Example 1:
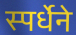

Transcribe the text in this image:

स्पर्धेने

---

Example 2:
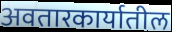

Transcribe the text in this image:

अवतारकार्यातील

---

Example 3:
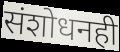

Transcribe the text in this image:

संशोधनही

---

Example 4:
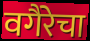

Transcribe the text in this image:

वगैरेचा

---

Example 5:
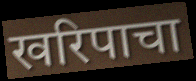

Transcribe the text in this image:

खरिपाचा